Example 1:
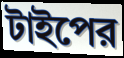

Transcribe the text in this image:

টাইপের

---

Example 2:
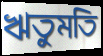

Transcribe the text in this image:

ঋতুমতি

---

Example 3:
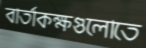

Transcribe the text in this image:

বার্তাকক্ষগুলোতে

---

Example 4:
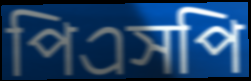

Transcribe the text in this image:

পিএসপি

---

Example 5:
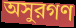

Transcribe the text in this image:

অসুরগণ